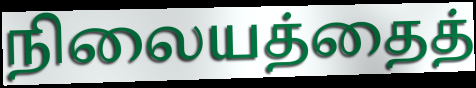
நிலையத்தைத்